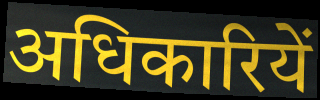
अधिकारियें